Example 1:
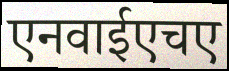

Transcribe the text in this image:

एनवाईएचए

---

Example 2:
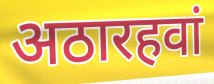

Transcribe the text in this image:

अठारहवां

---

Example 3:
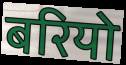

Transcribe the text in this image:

बरियो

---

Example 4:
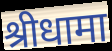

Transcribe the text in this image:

श्रीधामा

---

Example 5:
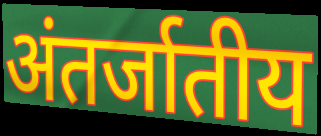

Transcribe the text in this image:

अंतर्जातीय